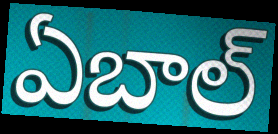
ఏబాల్